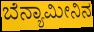
ಬೆನ್ಯಾಮೀನಿನ